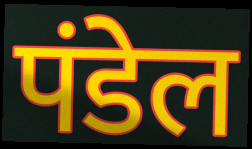
पंडेल